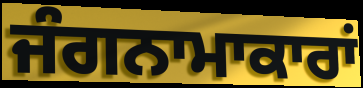
ਜੰਗਨਾਮਾਕਾਰਾਂ